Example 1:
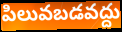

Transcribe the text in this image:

పిలువబడవద్దు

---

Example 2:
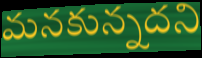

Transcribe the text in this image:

మనకున్నదని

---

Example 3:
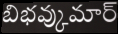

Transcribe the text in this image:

బిభవ్కుమార్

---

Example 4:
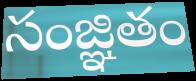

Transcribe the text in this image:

సంజ్ఞితం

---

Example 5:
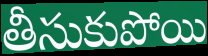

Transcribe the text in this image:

తీసుకుపోయి